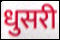
धुसरी